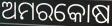
ଅମରକୋଷ